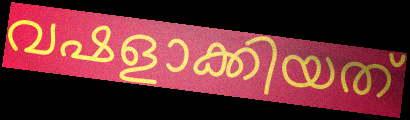
വഷളാക്കിയത്